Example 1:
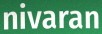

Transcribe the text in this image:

nivaran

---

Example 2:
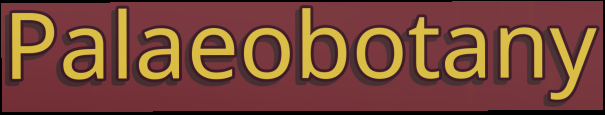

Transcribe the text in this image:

Palaeobotany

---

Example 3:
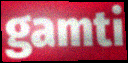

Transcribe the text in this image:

gamti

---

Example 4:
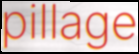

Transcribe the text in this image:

pillage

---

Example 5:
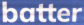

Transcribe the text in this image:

batter